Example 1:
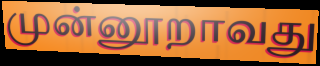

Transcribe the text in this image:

முன்னூறாவது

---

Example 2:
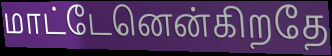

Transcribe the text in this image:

மாட்டேனென்கிறதே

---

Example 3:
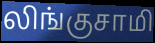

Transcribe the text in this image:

லிங்குசாமி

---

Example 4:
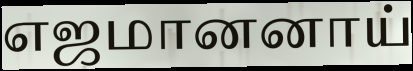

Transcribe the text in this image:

எஜமானனாய்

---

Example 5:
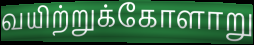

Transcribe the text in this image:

வயிற்றுக்கோளாறு